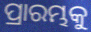
ପ୍ରାରମ୍ଭକୁ